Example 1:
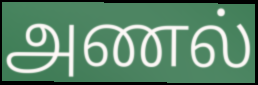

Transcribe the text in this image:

அணல்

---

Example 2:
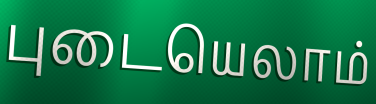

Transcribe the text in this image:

புடையெலாம்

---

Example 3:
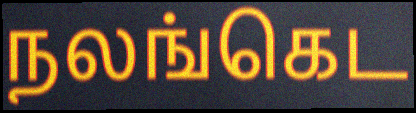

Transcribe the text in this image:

நலங்கெட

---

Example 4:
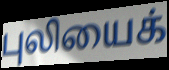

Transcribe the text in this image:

புலியைக்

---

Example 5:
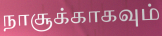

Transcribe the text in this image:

நாசூக்காகவும்